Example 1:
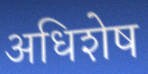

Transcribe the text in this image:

अधिशेष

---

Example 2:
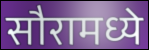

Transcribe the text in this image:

सौरामध्ये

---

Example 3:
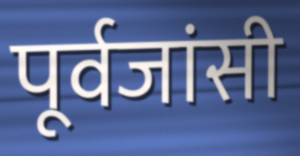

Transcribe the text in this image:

पूर्वजांसी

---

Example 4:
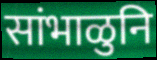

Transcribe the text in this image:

सांभाळुनि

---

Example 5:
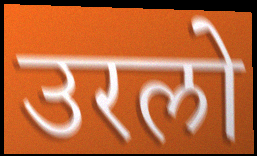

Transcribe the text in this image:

उरलो